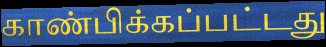
காண்பிக்கப்பட்டது